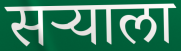
सऱ्याला